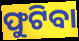
ଫୁଟିବା